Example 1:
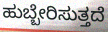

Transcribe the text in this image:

ಹುಬ್ಬೇರಿಸುತ್ತದೆ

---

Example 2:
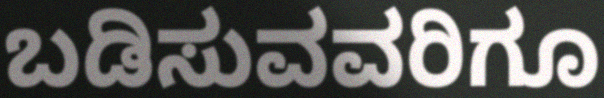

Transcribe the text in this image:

ಬಡಿಸುವವರಿಗೂ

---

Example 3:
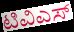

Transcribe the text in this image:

ಟಿವಿಎಸ್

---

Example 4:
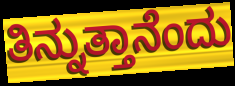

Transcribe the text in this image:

ತಿನ್ನುತ್ತಾನೆಂದು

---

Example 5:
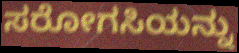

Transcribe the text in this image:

ಸರೋಗಸಿಯನ್ನು